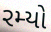
રમ્યો